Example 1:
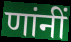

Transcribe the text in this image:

णांनीं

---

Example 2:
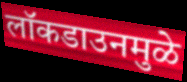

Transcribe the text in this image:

लॉकडाउनमुळे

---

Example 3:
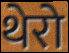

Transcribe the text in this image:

थेरो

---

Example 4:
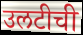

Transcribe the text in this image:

उलटीची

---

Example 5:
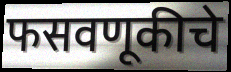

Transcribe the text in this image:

फसवणूकीचे